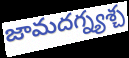
జామదగ్న్యశ్చ